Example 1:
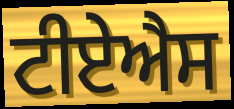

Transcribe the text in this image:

ਟੀਏਐਸ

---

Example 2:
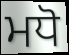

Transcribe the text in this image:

ਮਧੋ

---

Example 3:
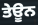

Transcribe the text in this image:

ਤੇਊਨ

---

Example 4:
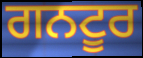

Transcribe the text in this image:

ਗਨਟੂਰ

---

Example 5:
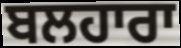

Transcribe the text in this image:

ਬਲਹਾਰਾ